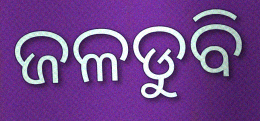
ଜଳଡୁବି